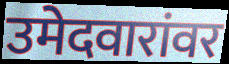
उमेदवारांवर